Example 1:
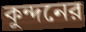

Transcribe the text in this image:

কুন্দনের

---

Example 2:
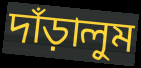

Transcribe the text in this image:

দাঁড়ালুম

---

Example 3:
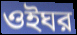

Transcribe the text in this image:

ওইঘর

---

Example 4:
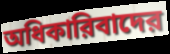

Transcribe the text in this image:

অধিকারিবাদের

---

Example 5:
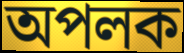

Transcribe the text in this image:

অপলক